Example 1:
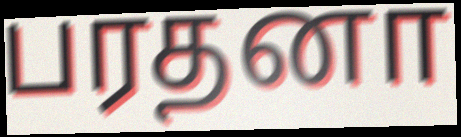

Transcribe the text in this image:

பரதனா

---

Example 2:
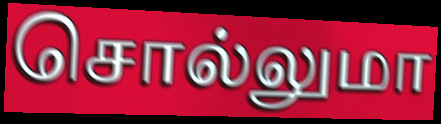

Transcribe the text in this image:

சொல்லுமா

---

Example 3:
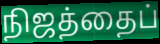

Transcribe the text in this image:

நிஜத்தைப்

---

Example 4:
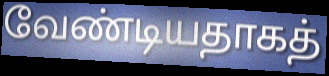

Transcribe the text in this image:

வேண்டியதாகத்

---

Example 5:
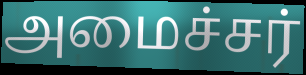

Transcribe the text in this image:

அமைச்சர்